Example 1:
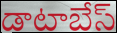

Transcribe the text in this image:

డాటాబేస్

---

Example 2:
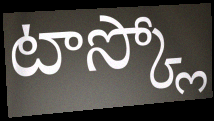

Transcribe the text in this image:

టాస్క్లో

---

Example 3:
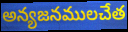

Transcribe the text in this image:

అన్యజనములచేత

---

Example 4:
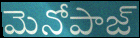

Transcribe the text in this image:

మెనోపాజ్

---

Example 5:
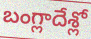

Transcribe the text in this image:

బంగ్లాదేశ్లో